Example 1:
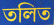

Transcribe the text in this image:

তলিত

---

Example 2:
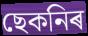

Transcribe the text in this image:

ছেকনিৰ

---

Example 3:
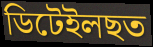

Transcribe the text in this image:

ডিটেইলছত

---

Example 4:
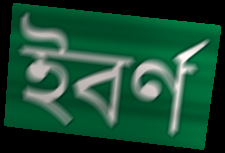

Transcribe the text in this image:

ইবৰ্ণ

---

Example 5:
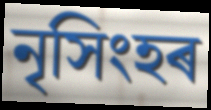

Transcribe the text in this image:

নৃসিংহৰ